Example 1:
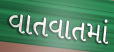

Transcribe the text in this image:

વાતવાતમાં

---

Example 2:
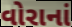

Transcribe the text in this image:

વોરાનાં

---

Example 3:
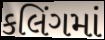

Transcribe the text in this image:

કલિંગમાં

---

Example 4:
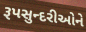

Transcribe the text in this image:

રૂપસુન્દરીઓને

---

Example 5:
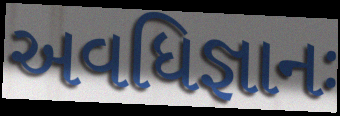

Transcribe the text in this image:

અવધિજ્ઞાનઃ